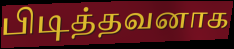
பிடித்தவனாக